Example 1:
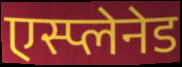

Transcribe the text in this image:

एस्प्लेनेड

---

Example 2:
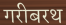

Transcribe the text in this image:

गरीबरथ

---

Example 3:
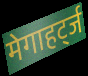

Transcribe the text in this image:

मेगाहर्ट्ज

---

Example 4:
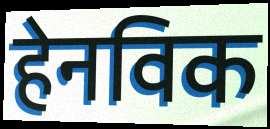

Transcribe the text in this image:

हेनविक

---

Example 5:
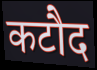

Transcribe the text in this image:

कटौद